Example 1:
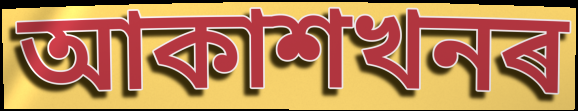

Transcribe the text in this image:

আকাশখনৰ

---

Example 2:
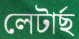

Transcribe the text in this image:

লেটাৰ্ছ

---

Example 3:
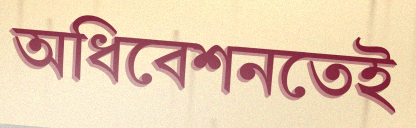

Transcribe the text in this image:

অধিবেশনতেই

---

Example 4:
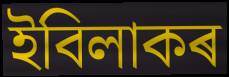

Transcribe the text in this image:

ইবিলাকৰ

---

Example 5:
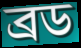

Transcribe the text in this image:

ব্ৰড